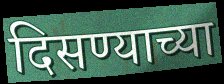
दिसण्याच्या